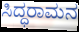
ಸಿದ್ಧರಾಮನ